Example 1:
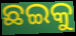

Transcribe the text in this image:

ଛଇକୁ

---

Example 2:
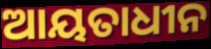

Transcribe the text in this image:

ଆୟତାଧୀନ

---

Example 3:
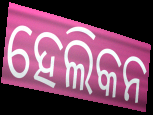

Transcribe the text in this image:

ହେଲିକନ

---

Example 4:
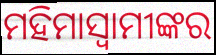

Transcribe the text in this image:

ମହିମାସ୍ୱାମୀଙ୍କର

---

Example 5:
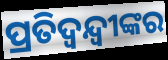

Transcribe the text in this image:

ପ୍ରତିଦ୍ୱନ୍ଦ୍ୱୀଙ୍କର